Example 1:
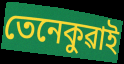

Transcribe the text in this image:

তেনেকুৱাই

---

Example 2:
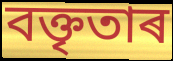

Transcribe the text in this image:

বক্তৃতাৰ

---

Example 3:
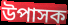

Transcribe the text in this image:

উপাসক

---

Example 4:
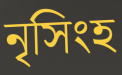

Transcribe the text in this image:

নৃসিংহ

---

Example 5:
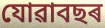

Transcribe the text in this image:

যোৱাবছৰ